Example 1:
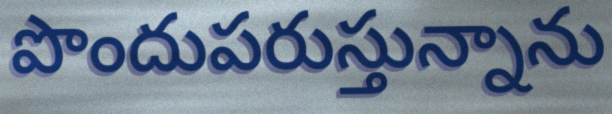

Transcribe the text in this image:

పొందుపరుస్తున్నాను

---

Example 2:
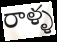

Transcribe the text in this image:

రాళ్ళ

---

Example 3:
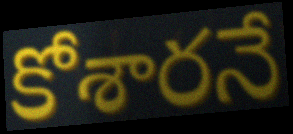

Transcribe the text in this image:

కోశారనే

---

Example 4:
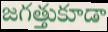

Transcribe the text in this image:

జగత్తుకూడా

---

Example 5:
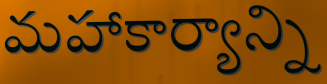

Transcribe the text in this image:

మహాకార్యాన్ని